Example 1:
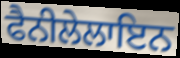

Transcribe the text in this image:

ਫੈਨੀਲੇਲਾਇਨ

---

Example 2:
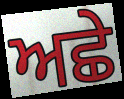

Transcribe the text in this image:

ਅਛੇ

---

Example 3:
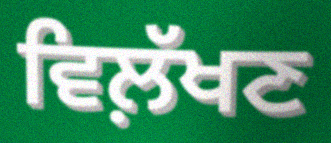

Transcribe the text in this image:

ਵਿਲ਼ੱਖਣ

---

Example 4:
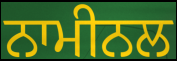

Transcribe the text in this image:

ਨਾਮੀਨਲ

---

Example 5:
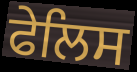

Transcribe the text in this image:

ਫੇਲਿਸ